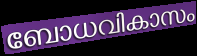
ബോധവികാസം